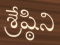
శ్రేష్ఠిని